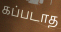
கப்படாத